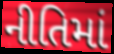
નીતિમાં